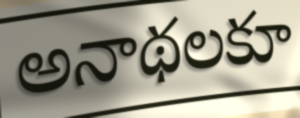
అనాథలకూ